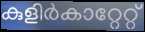
കുളിർകാറ്റേറ്റ്